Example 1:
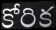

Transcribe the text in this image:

కోరిక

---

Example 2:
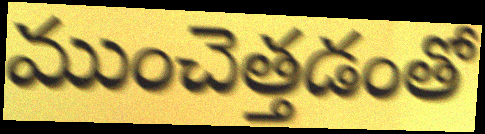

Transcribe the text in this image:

ముంచెత్తడంతో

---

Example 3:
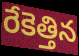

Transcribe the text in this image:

రేకెత్తిన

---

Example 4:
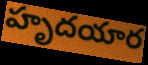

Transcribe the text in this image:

హృదయార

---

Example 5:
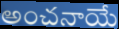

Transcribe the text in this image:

అంచనాయే